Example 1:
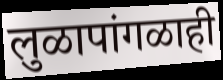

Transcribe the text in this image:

लुळापांगळाही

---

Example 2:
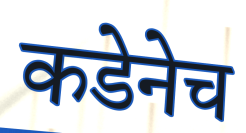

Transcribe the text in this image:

कडेनेच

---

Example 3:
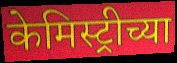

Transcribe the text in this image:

केमिस्ट्रीच्या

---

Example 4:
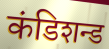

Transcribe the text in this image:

कंडिशन्ड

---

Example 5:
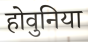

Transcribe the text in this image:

होवुनिया